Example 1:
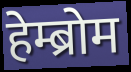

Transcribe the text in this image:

हेम्ब्रोम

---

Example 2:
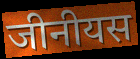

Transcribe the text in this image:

जीनीयस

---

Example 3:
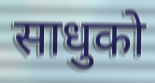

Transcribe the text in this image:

साधुको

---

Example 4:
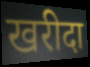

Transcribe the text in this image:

खरीदा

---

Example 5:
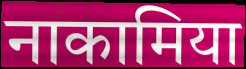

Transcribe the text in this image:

नाकामिया